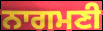
ਨਾਗਮਣੀ